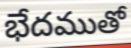
భేదముతో